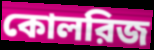
কোলরিজ